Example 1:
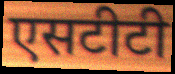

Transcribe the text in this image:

एसटीटी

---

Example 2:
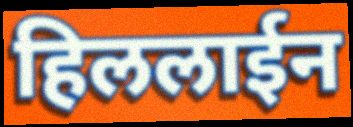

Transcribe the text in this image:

हिललाईन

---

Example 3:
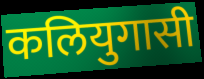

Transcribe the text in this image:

कलियुगासी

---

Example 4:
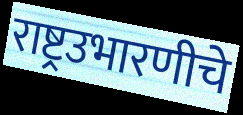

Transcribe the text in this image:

राष्ट्रउभारणीचे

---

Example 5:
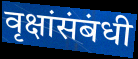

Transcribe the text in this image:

वृक्षांसंबंधी